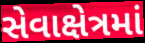
સેવાક્ષેત્રમાં